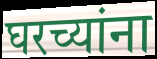
घरच्‍यांना